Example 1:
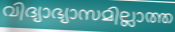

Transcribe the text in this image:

വിദ്യാഭ്യാസമില്ലാത്ത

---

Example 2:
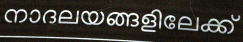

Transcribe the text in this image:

നാദലയങ്ങളിലേക്ക്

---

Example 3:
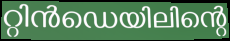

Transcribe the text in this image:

റ്റിൻഡെയിലിന്റെ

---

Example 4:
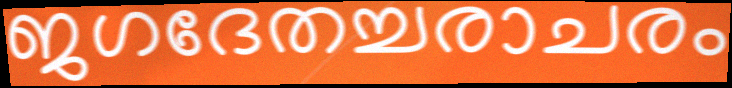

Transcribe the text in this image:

ജഗദേതച്ചരാചരം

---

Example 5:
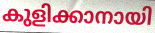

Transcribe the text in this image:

കുളിക്കാനായി